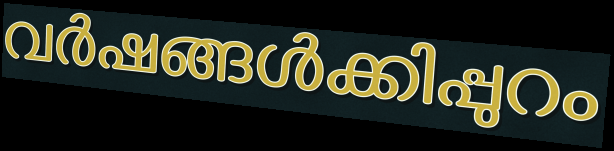
വർഷങ്ങൾക്കിപ്പുറം